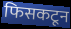
फिसकटून